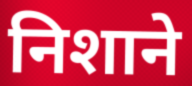
निशाने